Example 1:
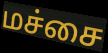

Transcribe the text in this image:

மச்சை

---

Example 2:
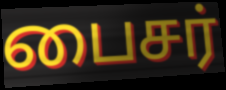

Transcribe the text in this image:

பைசர்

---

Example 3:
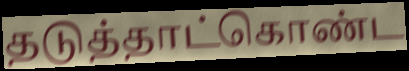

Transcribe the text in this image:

தடுத்தாட்கொண்ட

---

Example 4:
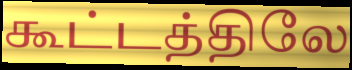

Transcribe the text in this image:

கூட்டத்திலே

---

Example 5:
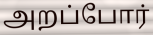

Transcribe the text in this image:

அறப்போர்